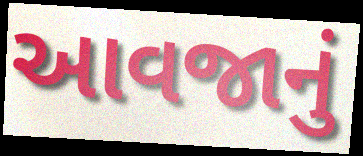
આવજાનું